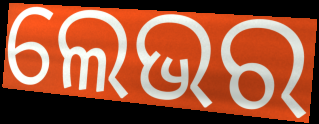
ଲେଭର